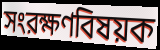
সংরক্ষণবিষয়ক